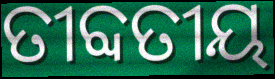
ତୀବ୍ଦତୀୟ